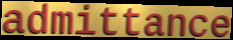
admittance